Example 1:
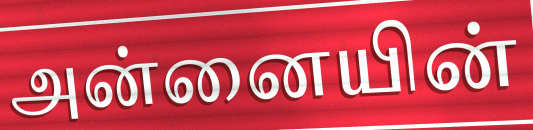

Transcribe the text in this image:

அன்னையின்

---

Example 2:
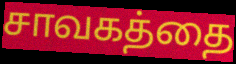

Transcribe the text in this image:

சாவகத்தை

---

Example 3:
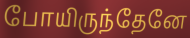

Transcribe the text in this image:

போயிருந்தேனே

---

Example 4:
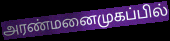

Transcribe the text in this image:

அரண்மனைமுகப்பில்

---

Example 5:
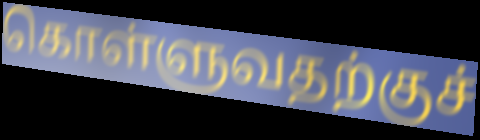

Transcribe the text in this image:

கொள்ளுவதற்குச்